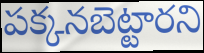
పక్కనబెట్టారని